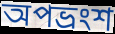
অপভ্ৰংশ